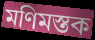
মণিমস্তক